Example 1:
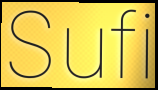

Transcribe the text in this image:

Sufi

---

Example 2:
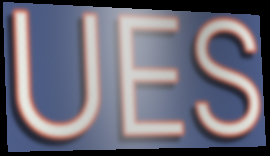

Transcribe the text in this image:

UES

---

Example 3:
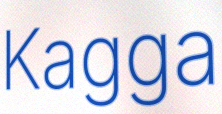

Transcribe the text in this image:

Kagga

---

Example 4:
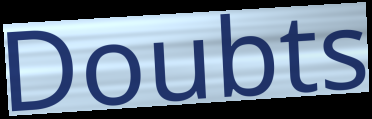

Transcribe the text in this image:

Doubts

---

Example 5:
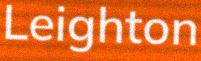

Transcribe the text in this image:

Leighton